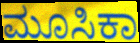
ಮೂಸಿಕಾ